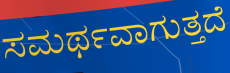
ಸಮರ್ಥವಾಗುತ್ತದೆ